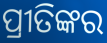
ପ୍ରୀତିଙ୍କର